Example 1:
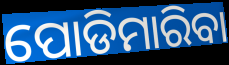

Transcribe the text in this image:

ପୋଡିମାରିବା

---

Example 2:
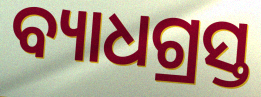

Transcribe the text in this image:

ବ୍ୟାଧଗ୍ରସ୍ତ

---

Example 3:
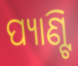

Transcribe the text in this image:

ପ୍ୟାଣ୍ଟି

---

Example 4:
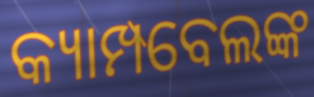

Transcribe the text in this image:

କ୍ୟାମ୍ପବେଲଙ୍କ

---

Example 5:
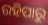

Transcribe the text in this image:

ରହିପାରୁ